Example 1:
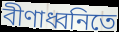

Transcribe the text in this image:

বীণাধ্বনিতে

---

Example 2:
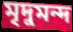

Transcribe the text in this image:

মৃদুমন্দ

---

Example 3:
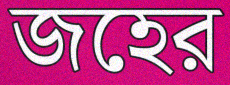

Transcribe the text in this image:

জহের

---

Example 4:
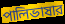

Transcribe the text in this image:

পালিভাষার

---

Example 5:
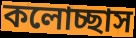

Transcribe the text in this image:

কলোচ্ছাস